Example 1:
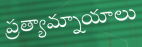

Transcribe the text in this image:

ప్రత్యామ్నాయాలు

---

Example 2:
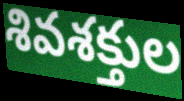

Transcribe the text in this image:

శివశక్తుల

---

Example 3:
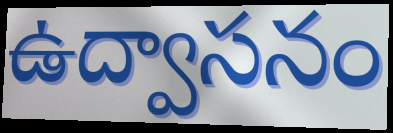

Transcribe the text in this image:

ఉద్వాసనం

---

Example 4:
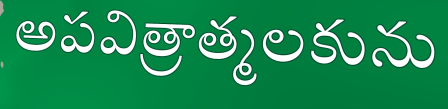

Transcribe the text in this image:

అపవిత్రాత్మలకును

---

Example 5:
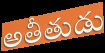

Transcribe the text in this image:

అతీతుడు